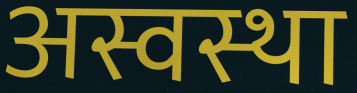
अस्वस्था